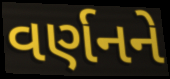
વર્ણનને